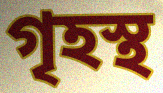
গৃহস্থ